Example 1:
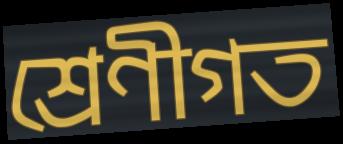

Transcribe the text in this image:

শ্ৰেণীগত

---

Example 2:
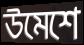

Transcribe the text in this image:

উমেশে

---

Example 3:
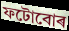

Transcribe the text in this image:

ফটোবোৰ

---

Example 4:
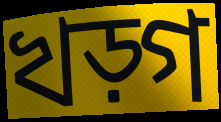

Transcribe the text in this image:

খড়্গ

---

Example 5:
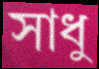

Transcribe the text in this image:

সাধু